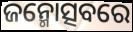
ଜନ୍ମୋତ୍ସବରେ